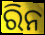
ରିନ